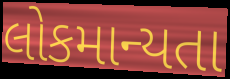
લોકમાન્યતા